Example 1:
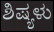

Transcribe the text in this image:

ಶಿಷ್ಯಳು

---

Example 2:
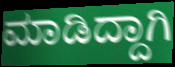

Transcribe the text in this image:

ಮಾಡಿದ್ದಾಗಿ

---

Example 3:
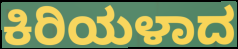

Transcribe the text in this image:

ಕಿರಿಯಳಾದ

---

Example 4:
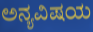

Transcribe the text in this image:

ಅನ್ಯವಿಷಯ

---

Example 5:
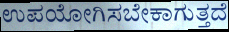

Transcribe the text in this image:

ಉಪಯೋಗಿಸಬೇಕಾಗುತ್ತದೆ